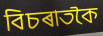
বিচৰাতকৈ